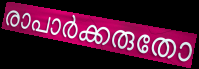
രാപാർക്കരുതോ